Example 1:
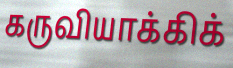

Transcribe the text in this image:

கருவியாக்கிக்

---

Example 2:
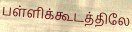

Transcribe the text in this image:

பள்ளிக்கூடத்திலே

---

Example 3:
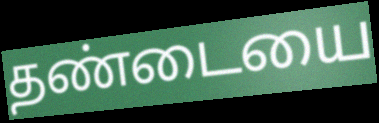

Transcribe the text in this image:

தண்டையை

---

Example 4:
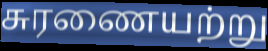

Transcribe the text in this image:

சுரணையற்று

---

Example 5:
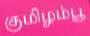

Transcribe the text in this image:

குமிழம்பூ